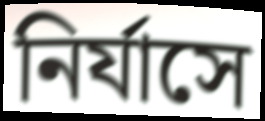
নির্যাসে